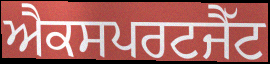
ਐਕਸਪਰਟਜੈੱਟ